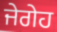
ਜੇਗੇਹ